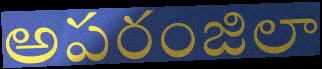
అపరంజిలా